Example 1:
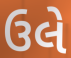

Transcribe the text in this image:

ઉલે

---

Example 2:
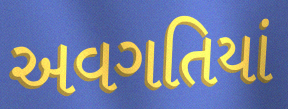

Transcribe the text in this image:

અવગતિયાં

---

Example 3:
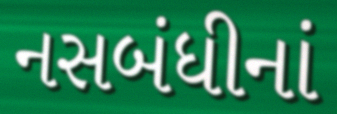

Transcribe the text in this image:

નસબંધીનાં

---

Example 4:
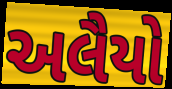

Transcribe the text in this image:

અલૈયો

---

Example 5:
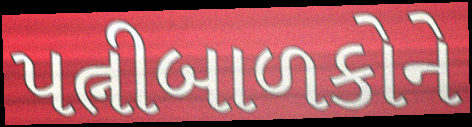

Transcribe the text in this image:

પત્નીબાળકોને